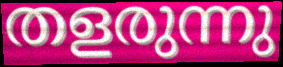
തളരുന്നു